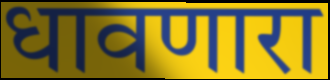
धावणारा